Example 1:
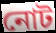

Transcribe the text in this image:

নোট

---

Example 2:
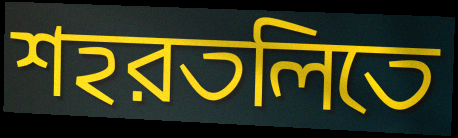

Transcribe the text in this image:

শহরতলিতে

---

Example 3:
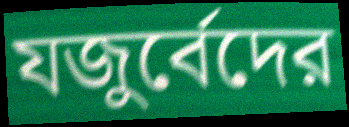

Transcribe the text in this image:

যজুর্বেদের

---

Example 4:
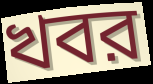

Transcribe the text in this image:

খবর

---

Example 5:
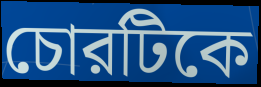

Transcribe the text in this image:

চোরটিকে